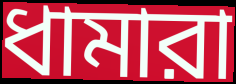
ধামারা